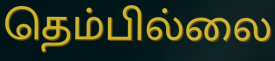
தெம்பில்லை